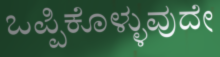
ಒಪ್ಪಿಕೊಳ್ಳುವುದೇ